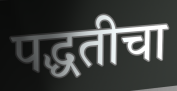
पद्धतीचा